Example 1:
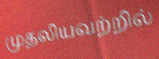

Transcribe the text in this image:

முதலியவற்றில்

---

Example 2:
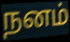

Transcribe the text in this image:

நனம்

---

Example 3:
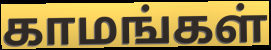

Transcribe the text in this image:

காமங்கள்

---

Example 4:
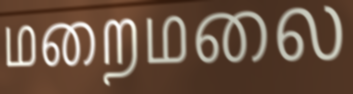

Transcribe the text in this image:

மறைமலை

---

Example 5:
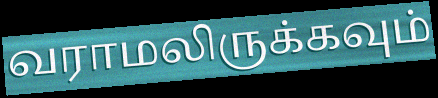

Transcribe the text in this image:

வராமலிருக்கவும்